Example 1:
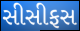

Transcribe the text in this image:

સીસીફસ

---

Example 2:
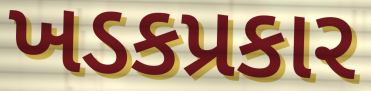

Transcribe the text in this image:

ખડકપ્રકાર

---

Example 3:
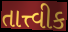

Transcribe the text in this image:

તાત્ત્વીક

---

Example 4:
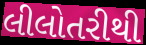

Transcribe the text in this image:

લીલોતરીથી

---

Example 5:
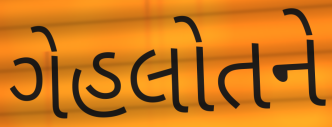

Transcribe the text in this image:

ગેહલોતને